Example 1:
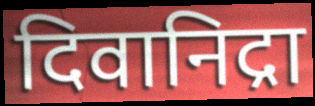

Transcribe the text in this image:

दिवानिद्रा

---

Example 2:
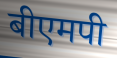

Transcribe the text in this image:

बीएमपी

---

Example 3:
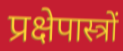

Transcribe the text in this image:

प्रक्षेपास्त्रों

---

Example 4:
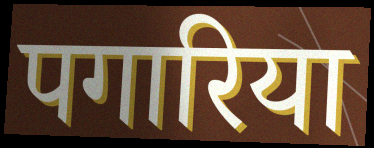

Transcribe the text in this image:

पगारिया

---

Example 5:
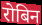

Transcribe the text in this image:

रोबिन